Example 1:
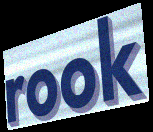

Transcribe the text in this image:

rook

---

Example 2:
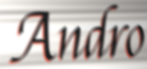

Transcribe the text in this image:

Andro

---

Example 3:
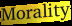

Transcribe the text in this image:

Morality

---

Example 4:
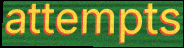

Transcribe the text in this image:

attempts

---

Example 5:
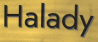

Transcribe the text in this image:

Halady